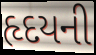
હૃદયની